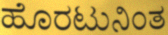
ಹೊರಟುನಿಂತ